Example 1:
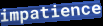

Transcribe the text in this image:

impatience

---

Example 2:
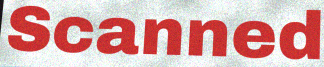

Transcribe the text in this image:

Scanned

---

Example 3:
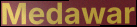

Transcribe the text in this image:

Medawar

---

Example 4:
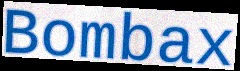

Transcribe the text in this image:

Bombax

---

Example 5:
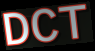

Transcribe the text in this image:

DCT